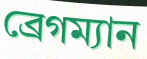
ব্রেগম্যান